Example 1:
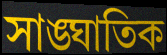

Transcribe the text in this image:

সাঙ্ঘাতিক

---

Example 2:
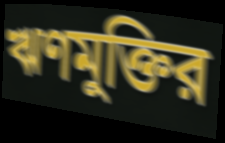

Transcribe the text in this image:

ঋণমুক্তির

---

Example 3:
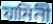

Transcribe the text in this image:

যামিনী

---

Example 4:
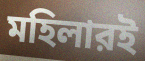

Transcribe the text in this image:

মহিলারই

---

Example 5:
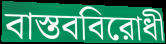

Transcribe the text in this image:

বাস্তববিরোধী